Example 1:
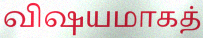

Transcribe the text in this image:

விஷயமாகத்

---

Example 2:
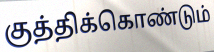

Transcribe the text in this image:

குத்திக்கொண்டும்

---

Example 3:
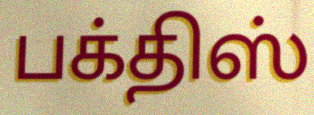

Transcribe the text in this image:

பக்திஸ்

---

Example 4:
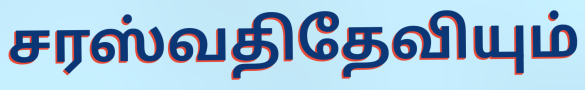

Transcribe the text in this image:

சரஸ்வதிதேவியும்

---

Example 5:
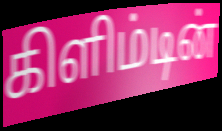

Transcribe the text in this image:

கிளிம்டின்